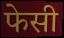
फेसी